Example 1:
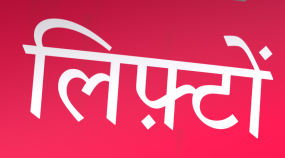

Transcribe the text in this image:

लिफ़्टों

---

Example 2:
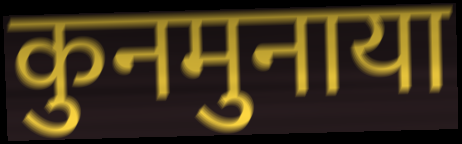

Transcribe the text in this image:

कुनमुनाया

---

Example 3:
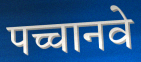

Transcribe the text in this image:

पच्चानवे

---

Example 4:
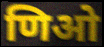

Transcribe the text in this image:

णिओ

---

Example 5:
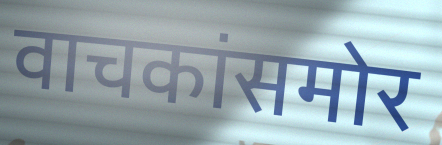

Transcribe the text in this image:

वाचकांसमोर